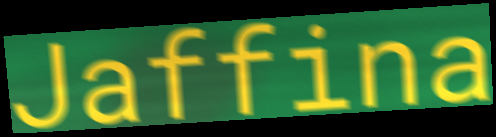
Jaffina